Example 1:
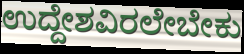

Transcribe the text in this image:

ಉದ್ದೇಶವಿರಲೇಬೇಕು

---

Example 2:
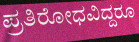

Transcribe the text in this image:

ಪ್ರತಿರೋಧವಿದ್ದರೂ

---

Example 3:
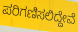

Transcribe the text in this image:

ಪರಿಗಣಿಸಲಿದ್ದೇವೆ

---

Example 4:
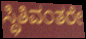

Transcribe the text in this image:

ಸ್ಥಿತಿವಂತರೇ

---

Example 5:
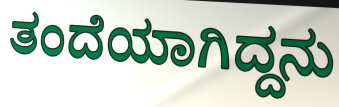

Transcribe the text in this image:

ತಂದೆಯಾಗಿದ್ದನು